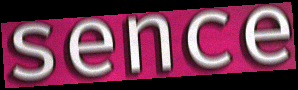
sence